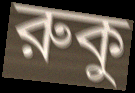
রুকু